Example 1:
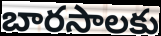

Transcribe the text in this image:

బారసాలకు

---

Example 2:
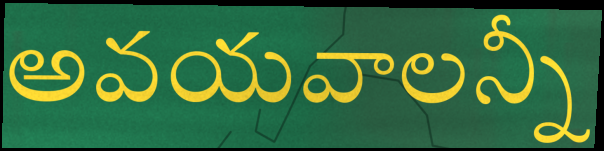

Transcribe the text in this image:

అవయవాలన్నీ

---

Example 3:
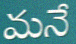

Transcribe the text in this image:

మనే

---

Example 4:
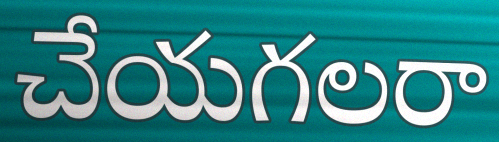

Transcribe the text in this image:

చేయగలరా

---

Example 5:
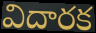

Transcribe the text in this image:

విదారక